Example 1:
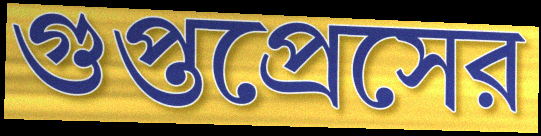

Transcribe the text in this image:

গুপ্তপ্রেসের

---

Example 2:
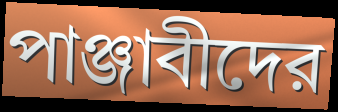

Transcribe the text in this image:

পাঞ্জাবীদের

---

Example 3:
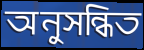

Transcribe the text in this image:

অনুসন্ধিত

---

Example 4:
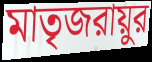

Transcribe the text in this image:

মাতৃজরায়ুর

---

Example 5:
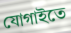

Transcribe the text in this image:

যোগাইতে